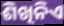
ଶିଖିନିଏ